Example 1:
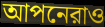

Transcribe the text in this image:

আপনেরাও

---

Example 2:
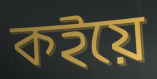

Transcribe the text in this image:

কইয়ে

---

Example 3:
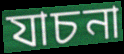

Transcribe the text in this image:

যাচনা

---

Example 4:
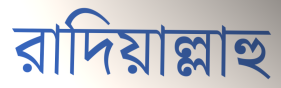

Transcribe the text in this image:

রাদিয়াল্লাহু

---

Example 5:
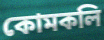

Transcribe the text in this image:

কোমকলি